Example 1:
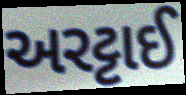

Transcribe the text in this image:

અરટ્ટાઈ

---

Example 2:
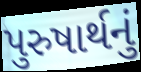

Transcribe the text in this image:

પુરુષાર્થનું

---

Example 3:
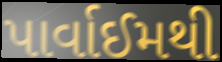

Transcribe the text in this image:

પાર્વાઈમથી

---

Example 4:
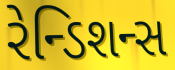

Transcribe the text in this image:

રેન્ડિશન્સ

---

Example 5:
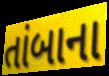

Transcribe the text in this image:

તાંબાના